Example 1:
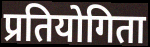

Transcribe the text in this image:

प्रतियोगिता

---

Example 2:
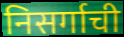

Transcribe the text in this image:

निसर्गाची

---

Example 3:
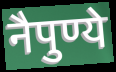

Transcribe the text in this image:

नैपुण्ये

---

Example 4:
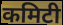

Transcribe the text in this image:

कमिटी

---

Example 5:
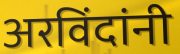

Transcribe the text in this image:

अरविंदांनी